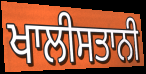
ਖਾਲੀਸਤਾਨੀ